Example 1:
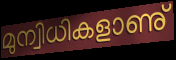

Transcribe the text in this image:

മുന്വിധികളാണു്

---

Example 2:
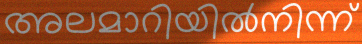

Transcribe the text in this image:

അലമാറിയിൽനിന്ന്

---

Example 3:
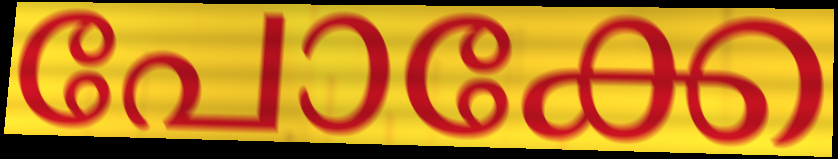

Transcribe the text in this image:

പോക്കേ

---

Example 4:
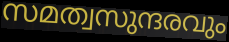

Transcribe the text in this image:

സമത്വസുന്ദരവും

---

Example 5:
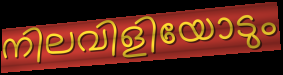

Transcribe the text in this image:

നിലവിളിയോടും